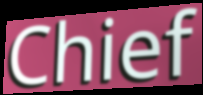
Chief